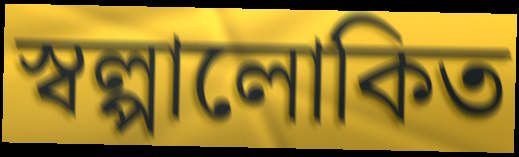
স্বল্পালোকিত